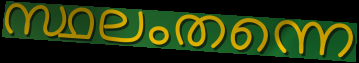
സ്ഥലംതന്നെ